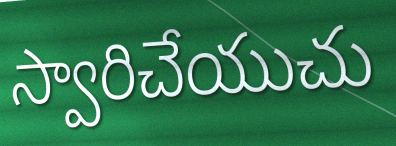
స్వారిచేయుచు